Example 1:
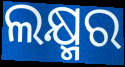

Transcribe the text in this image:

ଲକ୍ଷ୍ମର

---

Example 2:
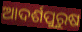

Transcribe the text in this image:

ଆଦର୍ଶପୁରୁଷ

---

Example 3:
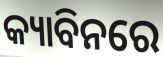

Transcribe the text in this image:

କ୍ୟାବିନରେ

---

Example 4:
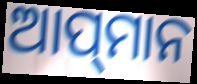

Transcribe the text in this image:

ଆପ୍‌ମାନ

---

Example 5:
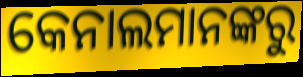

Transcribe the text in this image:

କେନାଲମାନଙ୍କରୁ